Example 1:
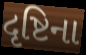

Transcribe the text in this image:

દૃષ્ટિના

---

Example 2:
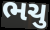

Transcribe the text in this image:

ભચુ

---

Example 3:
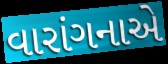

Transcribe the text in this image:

વારાંગનાએ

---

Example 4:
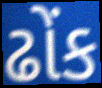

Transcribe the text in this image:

ઢોંક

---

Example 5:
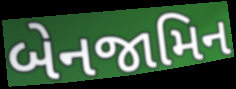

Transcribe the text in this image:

બેનજામિન